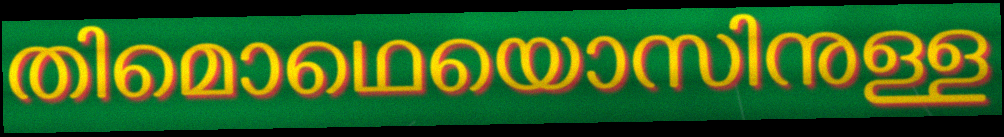
തിമൊഥെയൊസിനുള്ള